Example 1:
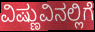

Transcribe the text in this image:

ವಿಷ್ಣುವಿನಲ್ಲಿಗೆ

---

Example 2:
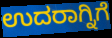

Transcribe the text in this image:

ಉದರಾಗ್ನಿಗೆ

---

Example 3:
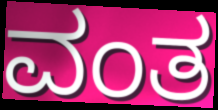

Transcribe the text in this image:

ವಂತ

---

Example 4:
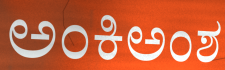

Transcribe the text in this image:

ಅಂಕಿಅಂಶ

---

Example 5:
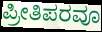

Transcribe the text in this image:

ಪ್ರೀತಿಪರವೂ